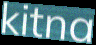
kitna